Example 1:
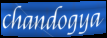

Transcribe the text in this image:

chandogya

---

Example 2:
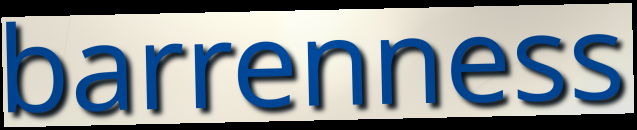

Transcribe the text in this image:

barrenness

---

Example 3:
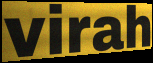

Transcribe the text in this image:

virah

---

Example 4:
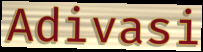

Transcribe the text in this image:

Adivasi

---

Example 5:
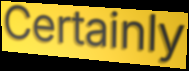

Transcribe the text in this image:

Certainly